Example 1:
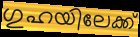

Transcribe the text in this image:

ഗുഹയിലേക്ക്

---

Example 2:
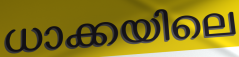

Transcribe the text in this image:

ധാക്കയിലെ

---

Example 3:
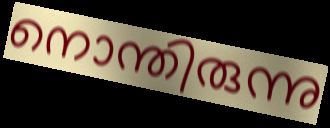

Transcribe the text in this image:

നൊന്തിരുന്നു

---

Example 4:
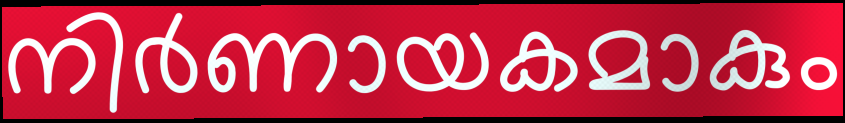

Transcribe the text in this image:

നിർണായകമാകും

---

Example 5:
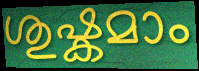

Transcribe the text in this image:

ശുഷ്കമാം